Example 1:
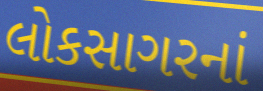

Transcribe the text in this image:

લોકસાગરનાં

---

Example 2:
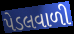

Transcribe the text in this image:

પેડલવાળી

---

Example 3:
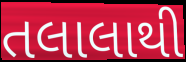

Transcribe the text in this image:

તલાલાથી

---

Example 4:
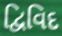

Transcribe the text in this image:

દ્વિવિદ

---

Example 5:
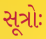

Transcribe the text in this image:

સૂત્રોઃ